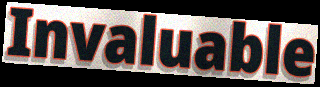
Invaluable